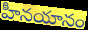
హీనయానం